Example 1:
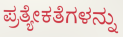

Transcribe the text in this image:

ಪ್ರತ್ಯೇಕತೆಗಳನ್ನು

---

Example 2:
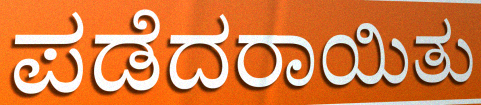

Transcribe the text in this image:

ಪಡೆದರಾಯಿತು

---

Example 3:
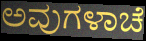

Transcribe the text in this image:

ಅವುಗಳಾಚೆ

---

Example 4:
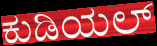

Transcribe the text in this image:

ಕುಡಿಯಲ್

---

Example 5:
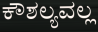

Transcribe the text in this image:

ಕೌಶಲ್ಯವಲ್ಲ